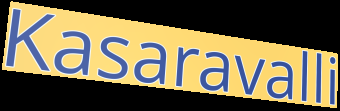
Kasaravalli